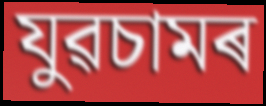
যুৱচামৰ